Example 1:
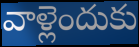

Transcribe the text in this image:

వాళ్లెందుకు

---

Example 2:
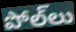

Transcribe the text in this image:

పోల్‌లు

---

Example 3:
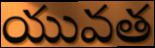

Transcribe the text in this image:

యువత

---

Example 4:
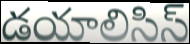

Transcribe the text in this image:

డయాలిసిస్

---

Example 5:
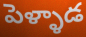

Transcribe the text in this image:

పెళ్ళాడ